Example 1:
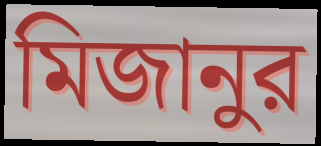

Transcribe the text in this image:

মিজানুর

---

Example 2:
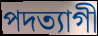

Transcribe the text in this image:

পদত্যাগী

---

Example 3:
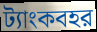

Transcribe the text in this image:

ট্যাংকবহর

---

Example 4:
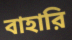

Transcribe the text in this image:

বাহারি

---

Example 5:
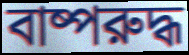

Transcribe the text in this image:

বাষ্পরুদ্ধ